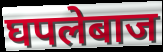
घपलेबाज